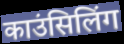
काउंसिलिंग